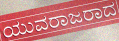
ಯುವರಾಜರಾದ